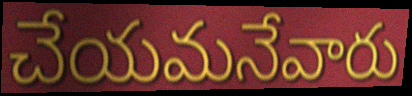
చేయమనేవారు